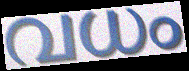
വധം